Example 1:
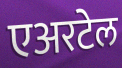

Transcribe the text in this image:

एअरटेल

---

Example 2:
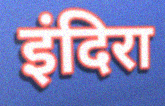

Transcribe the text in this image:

इंदिरा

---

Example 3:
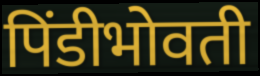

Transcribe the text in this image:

पिंडीभोवती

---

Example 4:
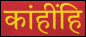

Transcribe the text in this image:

कांहींहि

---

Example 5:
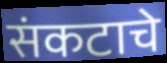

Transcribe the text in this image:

संकटाचे